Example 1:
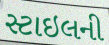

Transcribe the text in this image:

સ્ટાઇલની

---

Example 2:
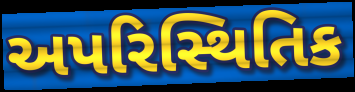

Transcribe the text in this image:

અપરિસ્થિતિક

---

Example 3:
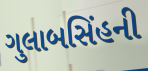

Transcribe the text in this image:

ગુલાબસિંહની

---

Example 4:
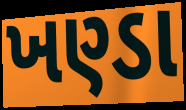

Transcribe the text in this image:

ખણ્ડા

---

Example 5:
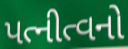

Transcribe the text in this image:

પત્નીત્વનો